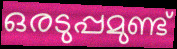
ഒരടുപ്പമുണ്ട്